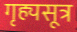
गृह्यसूत्र